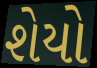
શેયો